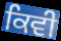
ਕਿਵੀ